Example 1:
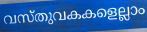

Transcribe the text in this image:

വസ്തുവകകളെല്ലാം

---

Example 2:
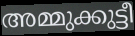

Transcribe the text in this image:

അമ്മുക്കുട്ടീ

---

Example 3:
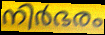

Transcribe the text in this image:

നിർഭരം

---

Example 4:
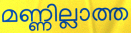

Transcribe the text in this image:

മണ്ണില്ലാത്ത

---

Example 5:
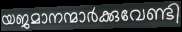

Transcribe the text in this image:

യജമാനന്മാർക്കുവേണ്ടി